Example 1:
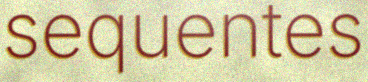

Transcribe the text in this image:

sequentes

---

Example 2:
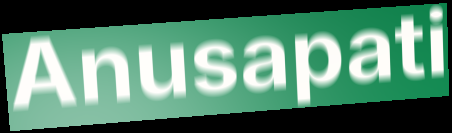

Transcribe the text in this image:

Anusapati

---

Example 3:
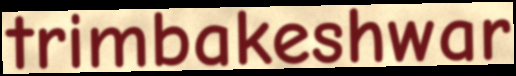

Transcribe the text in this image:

trimbakeshwar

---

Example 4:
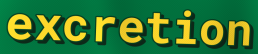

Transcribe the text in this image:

excretion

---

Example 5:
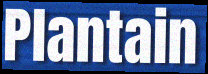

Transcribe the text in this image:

Plantain